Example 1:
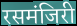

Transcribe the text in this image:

रसमंजिरी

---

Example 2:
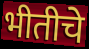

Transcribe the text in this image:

भीतीचे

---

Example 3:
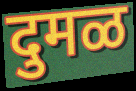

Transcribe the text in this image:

दुमळ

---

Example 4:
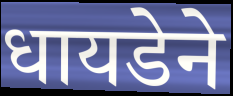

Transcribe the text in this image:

धायडेने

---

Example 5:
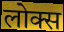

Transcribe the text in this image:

लोक्स